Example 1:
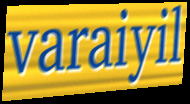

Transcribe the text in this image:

varaiyil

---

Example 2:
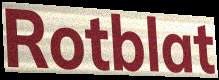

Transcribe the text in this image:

Rotblat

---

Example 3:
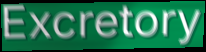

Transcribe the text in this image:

Excretory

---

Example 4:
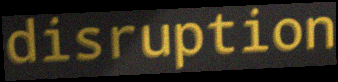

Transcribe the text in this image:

disruption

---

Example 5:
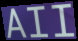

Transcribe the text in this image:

AII